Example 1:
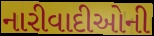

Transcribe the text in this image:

નારીવાદીઓની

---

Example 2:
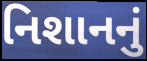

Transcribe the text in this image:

નિશાનનું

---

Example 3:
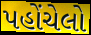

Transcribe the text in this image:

પહોંચેલો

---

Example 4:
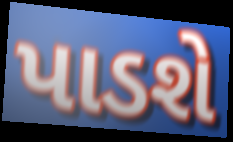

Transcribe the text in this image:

પાડશે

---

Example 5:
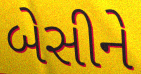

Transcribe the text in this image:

બેસીને